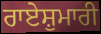
ਰਾਏਸ਼ੁਮਾਰੀ